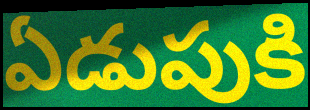
ఏడుపుకి